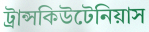
ট্রান্সকিউটেনিয়াস